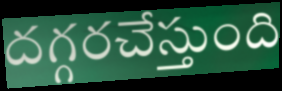
దగ్గరచేస్తుంది